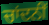
ਚਾਂਦਨੀਂ